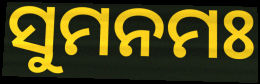
ସୁମନମଃ